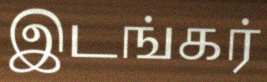
இடங்கர்